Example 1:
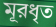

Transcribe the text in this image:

মূরধৃত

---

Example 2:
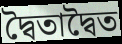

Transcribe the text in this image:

দ্বৈতাদ্বৈত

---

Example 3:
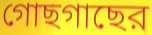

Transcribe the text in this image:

গোছগাছের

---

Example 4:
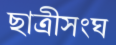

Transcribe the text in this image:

ছাত্রীসংঘ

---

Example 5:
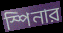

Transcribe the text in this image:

স্পিনার